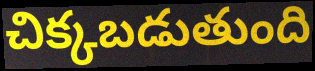
చిక్కబడుతుంది